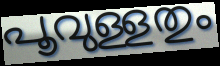
പൂവുള്ളതും